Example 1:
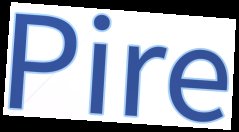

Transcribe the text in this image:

Pire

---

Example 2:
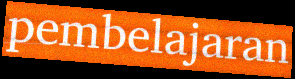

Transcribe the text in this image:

pembelajaran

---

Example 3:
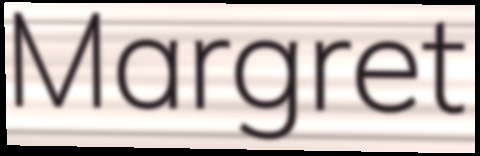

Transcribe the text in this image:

Margret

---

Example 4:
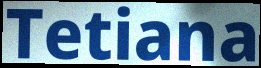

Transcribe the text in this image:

Tetiana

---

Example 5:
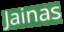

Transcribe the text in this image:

Jainas